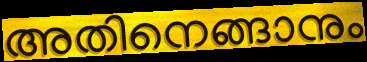
അതിനെങ്ങാനും